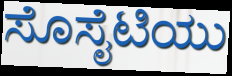
ಸೊಸೈಟಿಯು